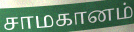
சாமகானம்